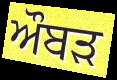
ਔਬੜ